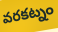
వరకట్నం